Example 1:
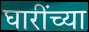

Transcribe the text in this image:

घारींच्या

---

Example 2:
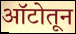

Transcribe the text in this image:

ऑटोतून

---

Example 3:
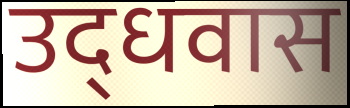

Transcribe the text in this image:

उद्धवास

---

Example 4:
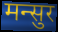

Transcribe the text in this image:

मन्सुर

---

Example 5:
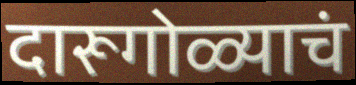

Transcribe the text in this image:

दारूगोळ्याचं